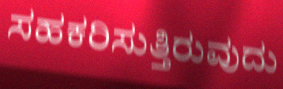
ಸಹಕರಿಸುತ್ತಿರುವುದು